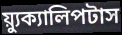
য়্যুক্যালিপটাস